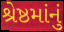
શ્રેષ્ઠમાંનું